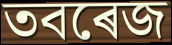
তবৰেজ